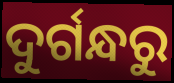
ଦୁର୍ଗନ୍ଧରୁ